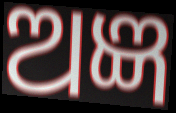
ଅଜ୍ଞ